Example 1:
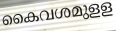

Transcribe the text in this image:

കൈവശമുളള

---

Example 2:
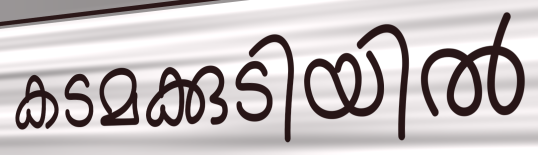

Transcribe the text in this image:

കടമക്കുടിയിൽ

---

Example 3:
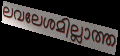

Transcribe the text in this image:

ലവലേശമില്ലാത്ത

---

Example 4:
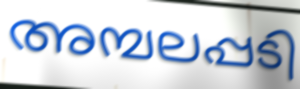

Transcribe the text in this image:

അമ്പലപ്പടി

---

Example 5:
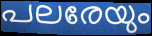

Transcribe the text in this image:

പലരേയും